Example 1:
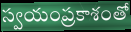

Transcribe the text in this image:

స్వయంప్రకాశంతో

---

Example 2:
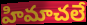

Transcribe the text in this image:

హిమాచలే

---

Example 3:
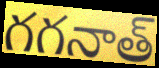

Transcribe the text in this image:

గగనాత్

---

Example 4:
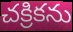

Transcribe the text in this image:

చక్రికను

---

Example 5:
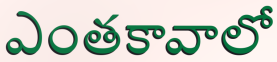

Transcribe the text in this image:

ఎంతకావాలో